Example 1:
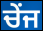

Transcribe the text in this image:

ਚੇਂਜ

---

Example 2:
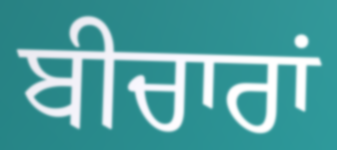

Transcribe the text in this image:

ਬੀਚਾਰਾਂ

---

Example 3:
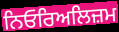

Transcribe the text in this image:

ਨਿਓਰਿਅਲਿਜ਼ਮ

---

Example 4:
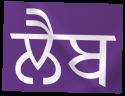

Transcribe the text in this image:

ਲੈਬ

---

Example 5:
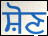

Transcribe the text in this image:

ਸ਼ੋਣ